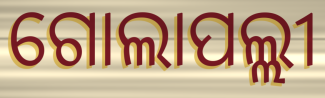
ଗୋଲାପଲ୍ଲୀ